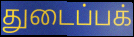
துடைப்பக்